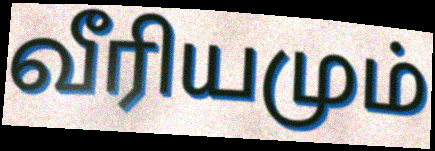
வீரியமும்